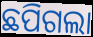
ଛପିଗଲା